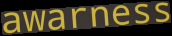
awarness